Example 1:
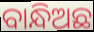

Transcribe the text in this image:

ବାନ୍ଧିଅଛ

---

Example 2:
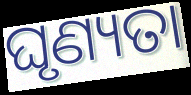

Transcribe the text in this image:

ଘୃଣ୍ୟତା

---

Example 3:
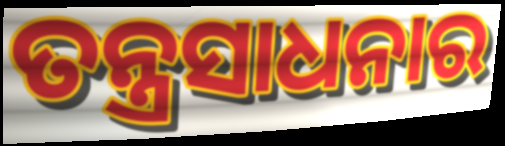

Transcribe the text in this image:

ତନ୍ତ୍ରସାଧନାର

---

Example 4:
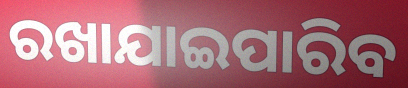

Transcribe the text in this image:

ରଖାଯାଇପାରିବ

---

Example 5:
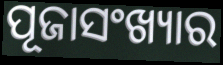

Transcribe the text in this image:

ପୂଜାସଂଖ୍ୟାର